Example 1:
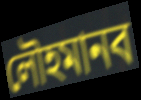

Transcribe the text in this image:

লৌহমানব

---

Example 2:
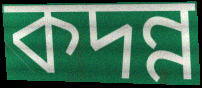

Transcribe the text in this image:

কদন্ন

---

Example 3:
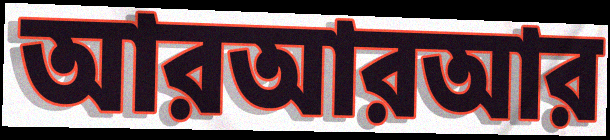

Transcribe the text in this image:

আরআরআর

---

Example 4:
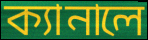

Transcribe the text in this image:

ক্যানালে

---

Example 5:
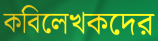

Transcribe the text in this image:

কবিলেখকদের